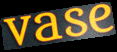
vase